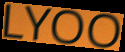
LYOO